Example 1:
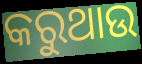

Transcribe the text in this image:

କରୁଥାଉ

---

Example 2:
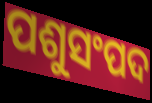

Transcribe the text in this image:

ପଶୁସଂପଦ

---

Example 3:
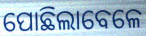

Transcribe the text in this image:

ପୋଛିଲାବେଳେ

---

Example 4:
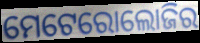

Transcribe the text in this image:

ମେଟେରୋଲୋଜିର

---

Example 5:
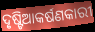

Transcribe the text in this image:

ଦୃଷ୍ଟିଆକର୍ଷଣକାରୀ